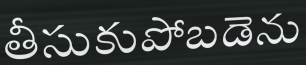
తీసుకుపోబడెను